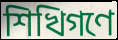
শিখিগণে